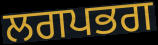
ਲਗਪਭਗ